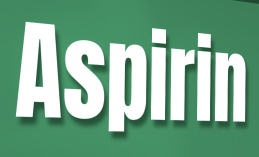
Aspirin